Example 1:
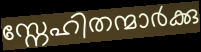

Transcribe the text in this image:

സ്നേഹിതന്മാർക്കു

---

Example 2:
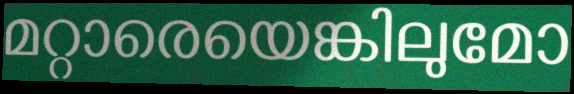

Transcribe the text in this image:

മറ്റാരെയെങ്കിലുമോ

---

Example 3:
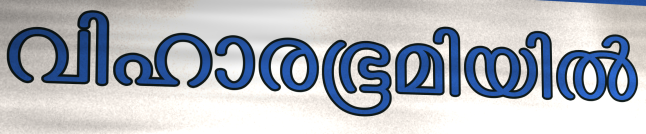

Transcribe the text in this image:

വിഹാരഭൂമിയിൽ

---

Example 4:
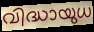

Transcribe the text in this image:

വിദ്ധായുധ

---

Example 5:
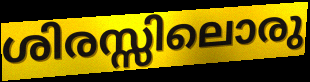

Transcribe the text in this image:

ശിരസ്സിലൊരു